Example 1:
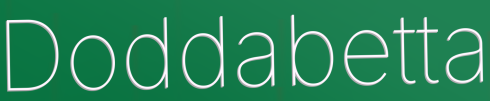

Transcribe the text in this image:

Doddabetta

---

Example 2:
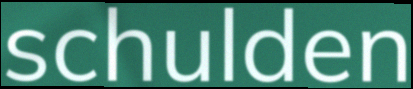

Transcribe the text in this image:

schulden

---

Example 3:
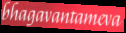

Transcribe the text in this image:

bhagavantameva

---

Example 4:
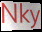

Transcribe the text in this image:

Nky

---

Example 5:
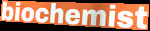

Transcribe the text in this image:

biochemist